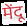
मेंदू